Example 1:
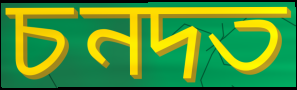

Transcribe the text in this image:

চনদত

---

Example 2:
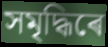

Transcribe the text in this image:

সমৃদ্ধিৰে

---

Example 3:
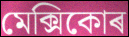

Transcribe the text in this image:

মেক্সিকোৰ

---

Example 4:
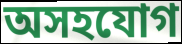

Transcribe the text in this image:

অসহযোগ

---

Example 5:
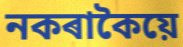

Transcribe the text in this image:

নকৰাকৈয়ে